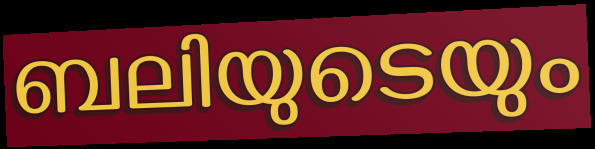
ബലിയുടെയും